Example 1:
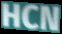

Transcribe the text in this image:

HCN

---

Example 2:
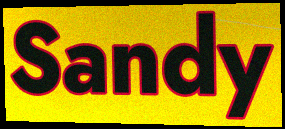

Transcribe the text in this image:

Sandy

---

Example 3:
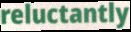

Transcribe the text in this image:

reluctantly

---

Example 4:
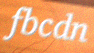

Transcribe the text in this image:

fbcdn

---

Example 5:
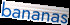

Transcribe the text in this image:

bananas